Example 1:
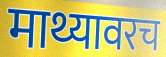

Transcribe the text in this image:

माथ्यावरच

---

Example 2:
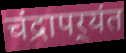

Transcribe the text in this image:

चंद्रापर्यंत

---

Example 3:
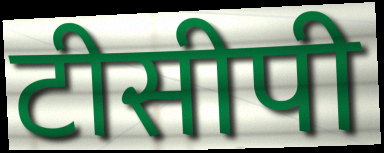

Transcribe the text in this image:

टीसीपी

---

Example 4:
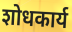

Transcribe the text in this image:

शोधकार्य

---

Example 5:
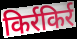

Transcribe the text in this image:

किर्रकिर्र